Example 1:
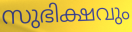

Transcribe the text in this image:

സുഭിക്ഷവും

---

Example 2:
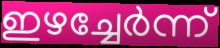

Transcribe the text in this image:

ഇഴച്ചേർന്ന്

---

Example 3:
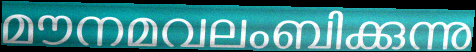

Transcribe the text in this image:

മൗനമവലംബിക്കുന്നു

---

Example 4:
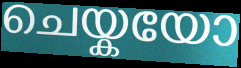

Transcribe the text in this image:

ചെയ്കയോ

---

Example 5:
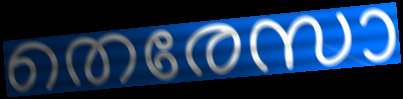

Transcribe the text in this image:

തെരേസാ